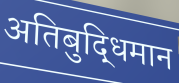
अतिबुद्धिमान